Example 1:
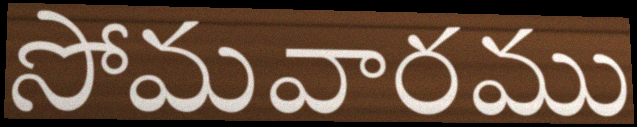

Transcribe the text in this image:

సోమవారము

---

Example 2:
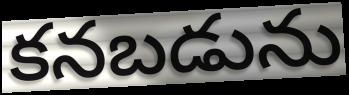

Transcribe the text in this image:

కనబడును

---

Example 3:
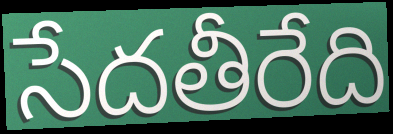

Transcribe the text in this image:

సేదతీరేది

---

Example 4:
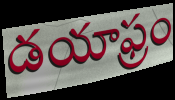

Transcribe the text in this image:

డయాఫ్రం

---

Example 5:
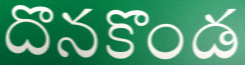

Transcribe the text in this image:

దొనకొండ